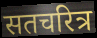
सतचरित्र